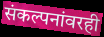
संकल्पनांवरही